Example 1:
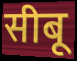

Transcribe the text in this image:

सीबू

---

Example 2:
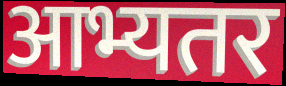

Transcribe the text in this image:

आभ्यतर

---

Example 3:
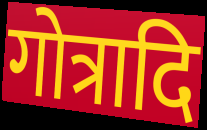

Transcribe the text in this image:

गोत्रादि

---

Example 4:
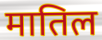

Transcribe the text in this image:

मातिल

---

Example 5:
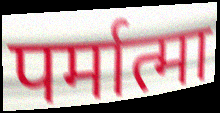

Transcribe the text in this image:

पर्मात्मा